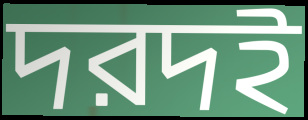
দরদই